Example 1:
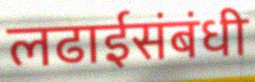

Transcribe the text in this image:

लढाईसंबंधी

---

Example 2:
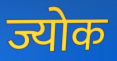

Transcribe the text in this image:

ज्योक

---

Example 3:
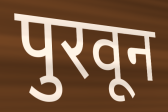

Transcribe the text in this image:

पुरवून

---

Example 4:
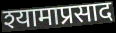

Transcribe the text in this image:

श्यामाप्रसाद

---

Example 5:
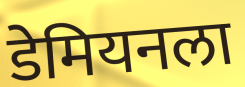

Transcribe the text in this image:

डेमियनला